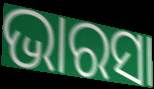
ଭାରସା